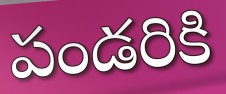
పండరికి